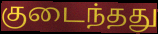
குடைந்தது